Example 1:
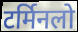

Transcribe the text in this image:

टर्मिनलो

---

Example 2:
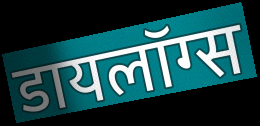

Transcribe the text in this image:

डायलॉग्स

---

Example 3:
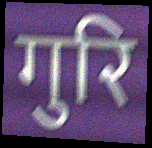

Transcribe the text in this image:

गुरि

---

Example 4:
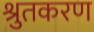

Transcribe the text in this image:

श्रुतकरण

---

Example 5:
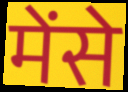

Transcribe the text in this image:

मेंसे